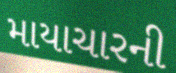
માયાચારની